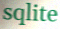
sqlite